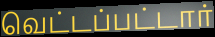
வெட்டப்பட்டார்